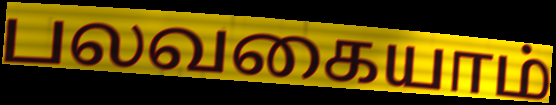
பலவகையாம்